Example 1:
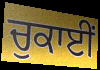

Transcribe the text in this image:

ਚੁਕਾਈਂ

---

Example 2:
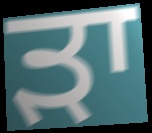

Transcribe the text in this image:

ੜਾ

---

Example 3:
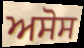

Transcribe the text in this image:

ਅਸੋਸ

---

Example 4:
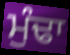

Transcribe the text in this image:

ਮੁੰਢਾ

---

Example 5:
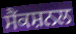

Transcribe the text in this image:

ਸੈਂਕਸ਼ਨਲ